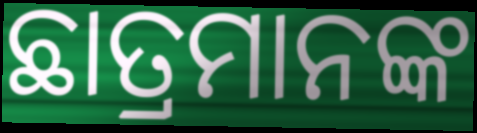
ଛାତ୍ରମାନଙ୍କ